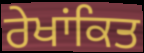
ਰੇਖਾਂਕਿਤ